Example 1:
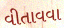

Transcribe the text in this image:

વીતાવવા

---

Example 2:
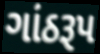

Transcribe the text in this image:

ગાંઠરૂપ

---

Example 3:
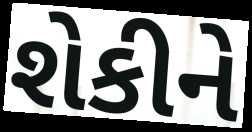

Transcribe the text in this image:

શેકીને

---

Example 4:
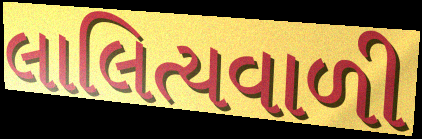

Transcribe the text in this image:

લાલિત્યવાળી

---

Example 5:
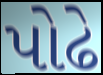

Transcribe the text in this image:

પોઢે